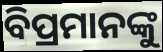
ବିପ୍ରମାନଙ୍କୁ